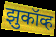
झुकॉव्ह